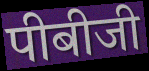
पीबीजी